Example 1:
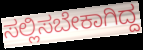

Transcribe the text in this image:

ಸಲ್ಲಿಸಬೇಕಾಗಿದ್ದ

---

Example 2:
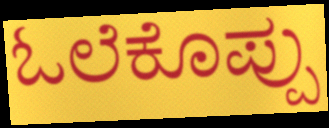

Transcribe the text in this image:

ಓಲೆಕೊಪ್ಪು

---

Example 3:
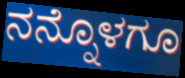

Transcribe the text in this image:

ನನ್ನೊಳಗೂ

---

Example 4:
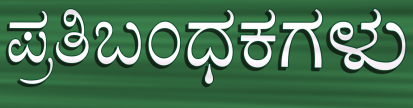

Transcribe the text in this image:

ಪ್ರತಿಬಂಧಕಗಳು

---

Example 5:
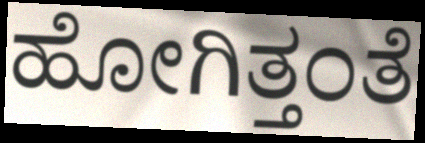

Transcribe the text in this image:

ಹೋಗಿತ್ತಂತೆ